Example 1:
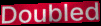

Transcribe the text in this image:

Doubled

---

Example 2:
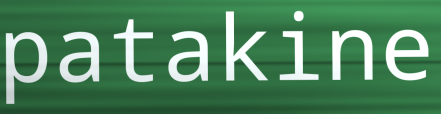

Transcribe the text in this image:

patakine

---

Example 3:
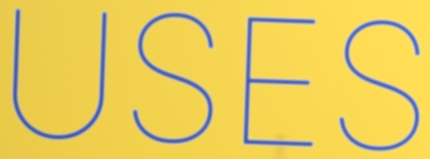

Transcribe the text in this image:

USES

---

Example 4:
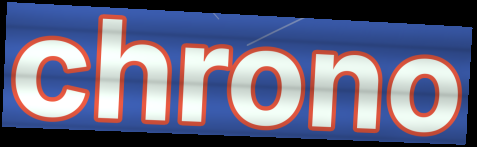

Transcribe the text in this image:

chrono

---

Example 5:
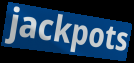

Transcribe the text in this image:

jackpots